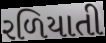
રળિયાતી